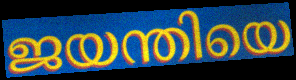
ജയന്തിയെ